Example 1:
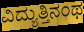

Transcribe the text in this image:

ವಿದ್ಯುತ್ತಿನಂಥ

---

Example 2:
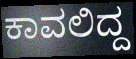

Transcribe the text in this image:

ಕಾವಲಿದ್ದ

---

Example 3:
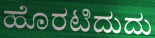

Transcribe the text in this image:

ಹೊರಟಿದುದು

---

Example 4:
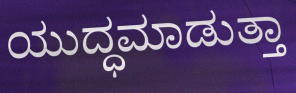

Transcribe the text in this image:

ಯುದ್ಧಮಾಡುತ್ತಾ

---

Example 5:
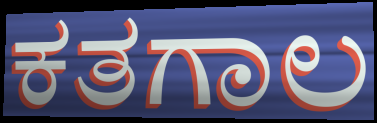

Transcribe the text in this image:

ಕತಗಾಲ